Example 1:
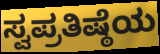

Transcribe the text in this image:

ಸ್ವಪ್ರತಿಷ್ಠೆಯ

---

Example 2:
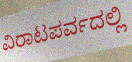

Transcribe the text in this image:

ವಿರಾಟಪರ್ವದಲ್ಲಿ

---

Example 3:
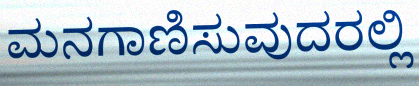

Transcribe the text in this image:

ಮನಗಾಣಿಸುವುದರಲ್ಲಿ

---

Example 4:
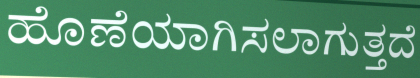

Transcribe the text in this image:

ಹೊಣೆಯಾಗಿಸಲಾಗುತ್ತದೆ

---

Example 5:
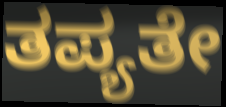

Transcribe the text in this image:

ತಪ್ಯತೇ